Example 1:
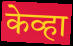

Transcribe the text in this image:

केव्हा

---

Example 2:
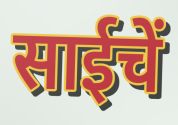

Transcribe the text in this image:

साईचें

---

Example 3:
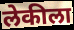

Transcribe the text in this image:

लेकीला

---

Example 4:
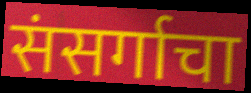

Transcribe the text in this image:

संसर्गाचा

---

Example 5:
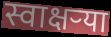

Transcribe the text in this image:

स्वाक्षऱ्या